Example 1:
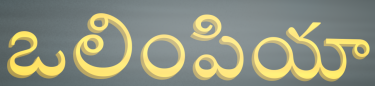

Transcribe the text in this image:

ఒలింపియా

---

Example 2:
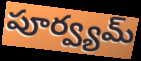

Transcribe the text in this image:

పూర్వ్యమ్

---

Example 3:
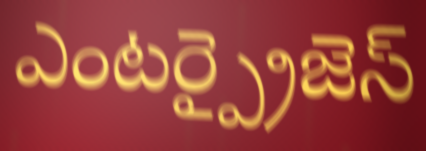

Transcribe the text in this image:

ఎంటర్ప్రైజెస్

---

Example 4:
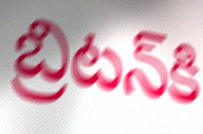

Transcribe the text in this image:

బ్రిటన్‌కి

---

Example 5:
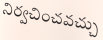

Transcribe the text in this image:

నిర్వచించవచ్చు